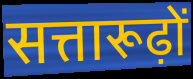
सत्तारूढ़ों